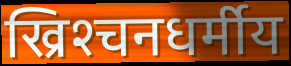
ख्रिश्चनधर्मीय